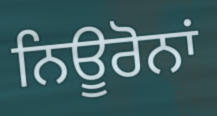
ਨਿਊਰੋਨਾਂ